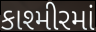
કાશ્મીરમાં